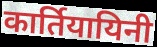
कार्तियायिनी